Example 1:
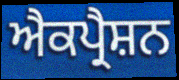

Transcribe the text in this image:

ਐਕਪ੍ਰੈਸ਼ਨ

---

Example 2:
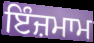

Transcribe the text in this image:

ਇੰਜ਼ਮਾਮ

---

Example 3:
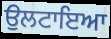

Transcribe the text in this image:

ਉਲਟਾਇਆ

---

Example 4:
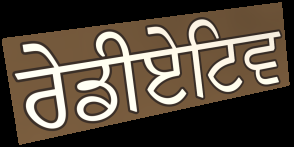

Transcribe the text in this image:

ਰੇਡੀਏਟਿਵ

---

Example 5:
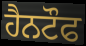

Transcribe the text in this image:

ਹੈਨਟੌਫ